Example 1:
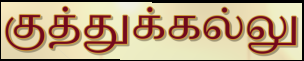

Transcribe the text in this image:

குத்துக்கல்லு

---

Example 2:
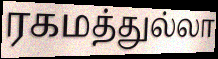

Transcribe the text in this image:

ரகமத்துல்லா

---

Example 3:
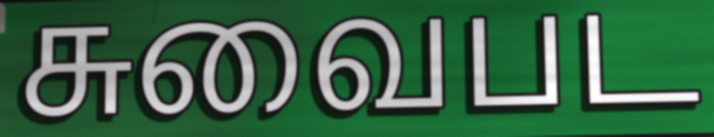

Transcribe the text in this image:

சுவைபட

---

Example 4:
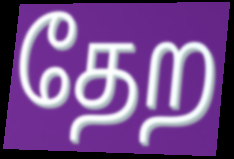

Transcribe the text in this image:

தேற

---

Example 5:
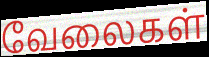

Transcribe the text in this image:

வேலைகள்